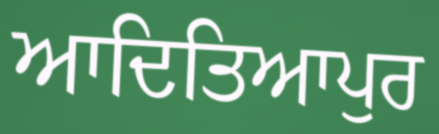
ਆਦਿਤਿਆਪੁਰ